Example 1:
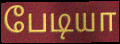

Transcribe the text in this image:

பேடியா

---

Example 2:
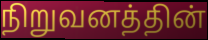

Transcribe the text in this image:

நிறுவனத்தின்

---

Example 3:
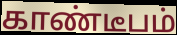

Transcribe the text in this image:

காண்டீபம்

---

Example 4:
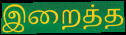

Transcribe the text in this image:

இறைத்த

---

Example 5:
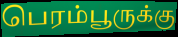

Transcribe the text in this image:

பெரம்பூருக்கு